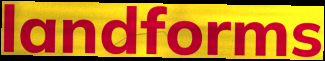
landforms